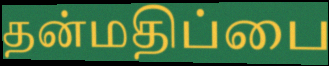
தன்மதிப்பை